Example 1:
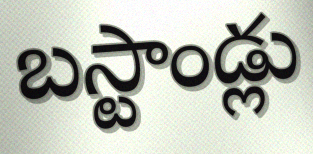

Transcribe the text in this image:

బస్టాండ్లు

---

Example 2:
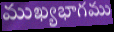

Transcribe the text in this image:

ముఖ్యభాగము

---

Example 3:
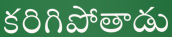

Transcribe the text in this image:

కరిగిపోతాడు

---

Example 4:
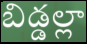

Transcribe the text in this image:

బిడ్డల్లా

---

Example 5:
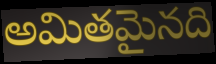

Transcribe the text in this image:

అమితమైనది